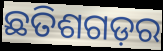
ଛତିଶଗଡ଼ର